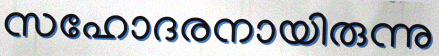
സഹോദരനായിരുന്നു